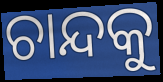
ଚାନ୍ଦକୁ